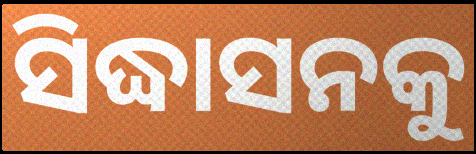
ସିଦ୍ଧାସନକୁ